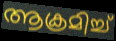
ആക്രമിച്ച്